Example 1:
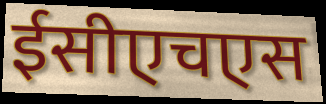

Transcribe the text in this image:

ईसीएचएस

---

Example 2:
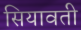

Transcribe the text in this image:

सियावती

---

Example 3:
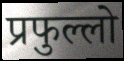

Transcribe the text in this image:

प्रफुल्लो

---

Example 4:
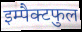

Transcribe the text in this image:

इम्पैक्टफुल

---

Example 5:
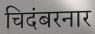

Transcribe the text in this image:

चिदंबरनार